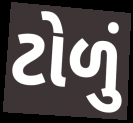
ટોળું